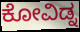
ಕೋವಿಡ್ನ